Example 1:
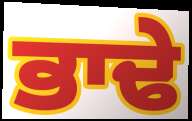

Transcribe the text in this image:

ਭਾਢੇ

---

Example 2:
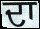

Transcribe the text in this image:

ਦਾ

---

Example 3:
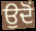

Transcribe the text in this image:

ਉਦੋਂ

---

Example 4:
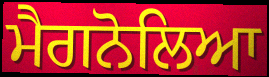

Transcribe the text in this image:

ਮੈਗਨੋਲਿਆ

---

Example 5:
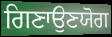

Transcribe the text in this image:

ਗਿਣਾਉਣਯੋਗ